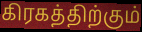
கிரகத்திற்கும்